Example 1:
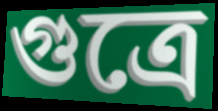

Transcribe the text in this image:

গুত্রে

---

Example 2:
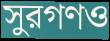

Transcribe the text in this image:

সুরগণও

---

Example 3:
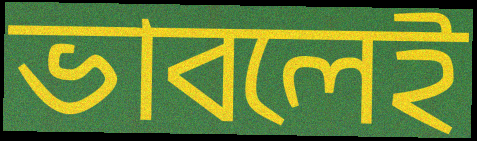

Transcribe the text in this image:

ভাবলেই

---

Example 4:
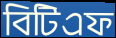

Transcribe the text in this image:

বিটিএফ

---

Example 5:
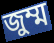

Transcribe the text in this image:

জুম্ম